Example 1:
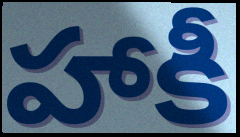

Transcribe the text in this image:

హాకీ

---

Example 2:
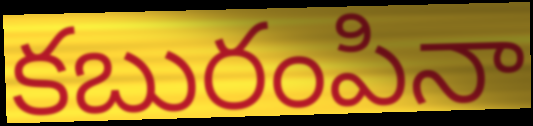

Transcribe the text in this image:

కబురంపినా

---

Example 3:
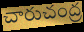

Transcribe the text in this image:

చారుచంద్ర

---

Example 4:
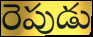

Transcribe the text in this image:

రెపుడు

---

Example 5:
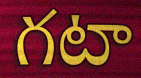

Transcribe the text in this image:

గటా